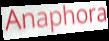
Anaphora